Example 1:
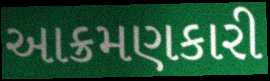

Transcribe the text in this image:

આક્રમણકારી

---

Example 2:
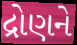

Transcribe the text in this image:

દ્રોણને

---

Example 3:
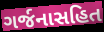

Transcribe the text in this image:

ગર્જનાસહિત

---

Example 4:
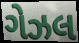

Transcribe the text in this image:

ગેઝલ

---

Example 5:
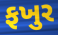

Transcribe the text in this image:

ફખુર